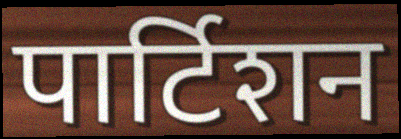
पार्टिशन